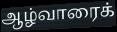
ஆழ்வாரைக்